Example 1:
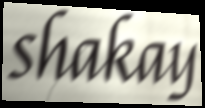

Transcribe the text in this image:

shakay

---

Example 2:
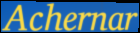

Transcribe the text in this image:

Achernar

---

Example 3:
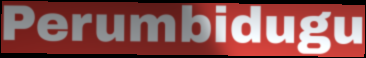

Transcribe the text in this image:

Perumbidugu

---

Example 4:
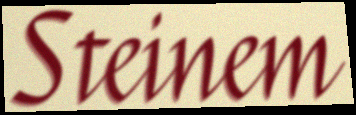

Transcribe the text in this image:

Steinem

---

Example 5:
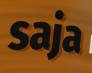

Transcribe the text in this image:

saja